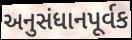
અનુસંધાનપૂર્વક